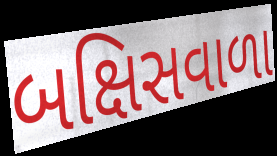
બક્ષિસવાળા